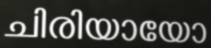
ചിരിയായോ